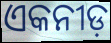
ଏକନୀଡ଼